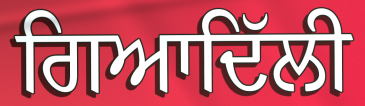
ਗਿਆਦਿੱਲੀ